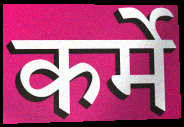
कर्मे